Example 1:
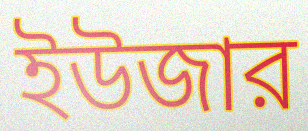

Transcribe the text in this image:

ইউজার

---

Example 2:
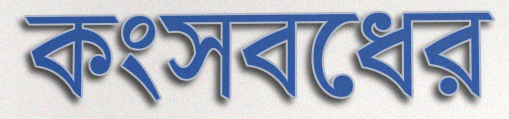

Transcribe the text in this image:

কংসবধের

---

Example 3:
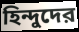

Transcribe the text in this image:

হিন্দুদের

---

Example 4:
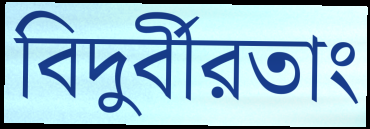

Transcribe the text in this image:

বিদুর্বীরতাং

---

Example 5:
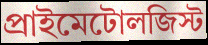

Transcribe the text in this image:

প্রাইমেটোলজিস্ট